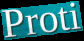
Proti